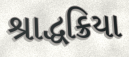
શ્રાદ્ધક્રિયા